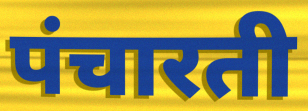
पंचारती